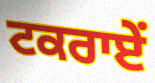
ਟਕਰਾਏਂ